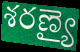
శరణ్యై